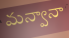
మన్వానా